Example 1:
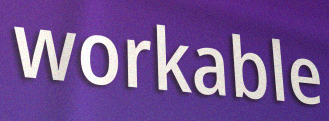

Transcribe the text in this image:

workable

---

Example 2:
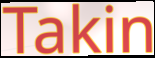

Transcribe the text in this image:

Takin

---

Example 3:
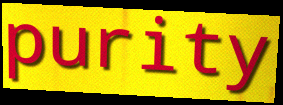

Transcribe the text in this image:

purity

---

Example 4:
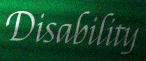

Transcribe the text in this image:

Disability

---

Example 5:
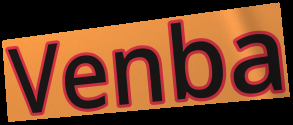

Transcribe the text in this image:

Venba